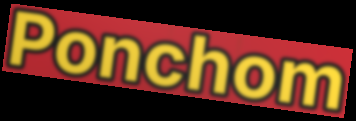
Ponchom